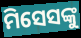
ମିସେସଙ୍କୁ